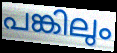
പങ്കിലും